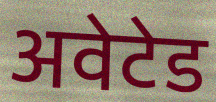
अवेटेड